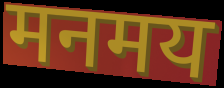
मनमय